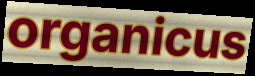
organicus